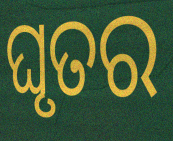
ଘୃତର